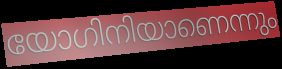
യോഗിനിയാണെന്നും